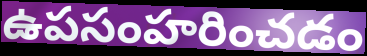
ఉపసంహరించడం